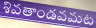
శివతాండవమట